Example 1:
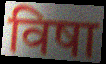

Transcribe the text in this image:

विषा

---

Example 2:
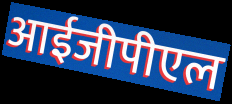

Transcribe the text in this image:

आईजीपीएल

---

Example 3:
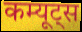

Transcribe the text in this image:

कम्यूट्स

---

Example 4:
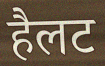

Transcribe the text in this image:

हैलट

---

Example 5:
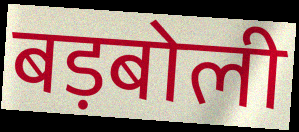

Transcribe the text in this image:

बड़बोली